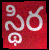
స్థిర